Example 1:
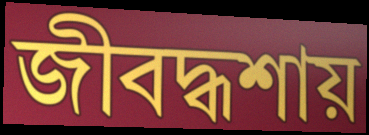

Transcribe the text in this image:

জীবদ্ধশায়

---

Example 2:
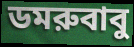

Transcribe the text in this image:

ডমরুবাবু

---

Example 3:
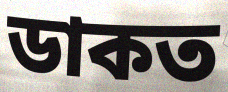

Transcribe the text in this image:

ডাকত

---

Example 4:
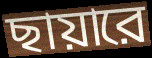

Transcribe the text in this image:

ছায়ারে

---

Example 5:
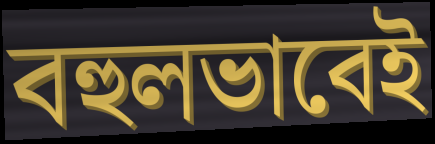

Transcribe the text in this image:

বহুলভাবেই